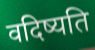
वदिष्यति